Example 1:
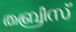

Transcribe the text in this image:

തബ്രിസ്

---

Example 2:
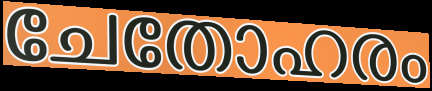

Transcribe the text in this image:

ചേതോഹരം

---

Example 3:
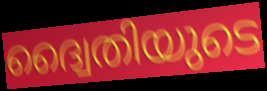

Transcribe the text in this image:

ദ്വൈതിയുടെ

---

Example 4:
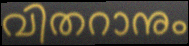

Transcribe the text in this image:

വിതറാനും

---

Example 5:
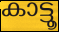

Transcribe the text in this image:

കാട്ടൂ